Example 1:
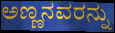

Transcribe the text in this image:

ಅಣ್ಣನವರನ್ನು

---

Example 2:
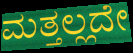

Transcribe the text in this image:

ಮತ್ತಲ್ಲದೇ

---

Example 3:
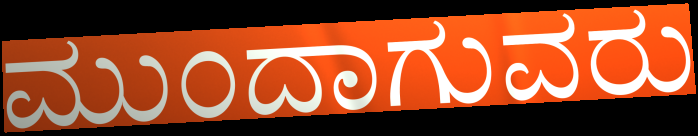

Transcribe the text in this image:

ಮುಂದಾಗುವರು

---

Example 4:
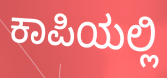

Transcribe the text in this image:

ಕಾಪಿಯಲ್ಲಿ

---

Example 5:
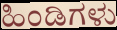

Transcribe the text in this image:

ಹಿಂಡಿಗಳು